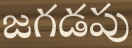
జగడపు